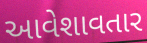
આવેશાવતાર